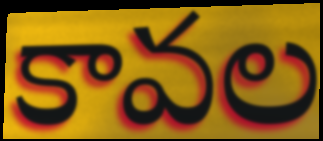
కావల